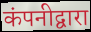
कंपनीद्वारा